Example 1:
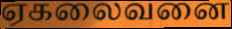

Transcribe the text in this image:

ஏகலைவனை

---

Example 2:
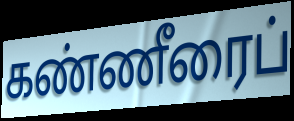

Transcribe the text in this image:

கண்ணீரைப்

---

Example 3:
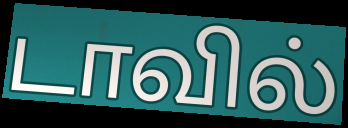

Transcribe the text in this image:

டாவில்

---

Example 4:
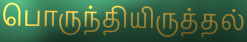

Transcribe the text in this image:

பொருந்தியிருத்தல்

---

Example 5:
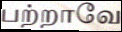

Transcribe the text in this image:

பற்றாவே